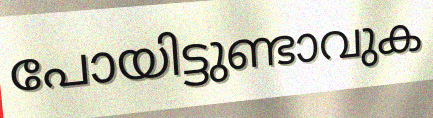
പോയിട്ടുണ്ടാവുക